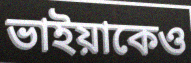
ভাইয়াকেও